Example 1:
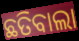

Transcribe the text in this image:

ଛତିବାଲା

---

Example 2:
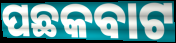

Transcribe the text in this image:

ପଛକବାଟ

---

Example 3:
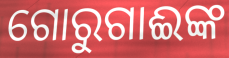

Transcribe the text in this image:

ଗୋରୁଗାଈଙ୍କ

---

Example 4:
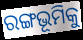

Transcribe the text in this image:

ରଙ୍ଗଭୂମିକୁ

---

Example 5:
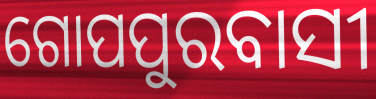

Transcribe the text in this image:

ଗୋପପୁରବାସୀ